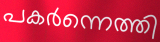
പകർന്നെത്തി